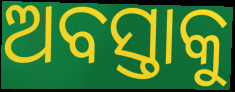
ଅବସ୍ତାକୁ